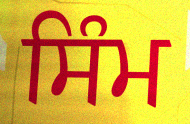
ਸਿੰਮ